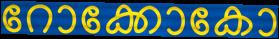
റോക്കോകോ